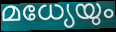
മധ്യേയും